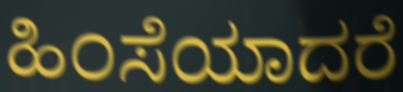
ಹಿಂಸೆಯಾದರೆ